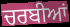
ਚਰਬੀਆਂ